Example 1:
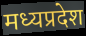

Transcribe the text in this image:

मध्यप्रदेश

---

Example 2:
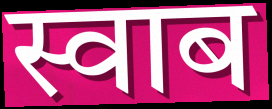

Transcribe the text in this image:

स्वाब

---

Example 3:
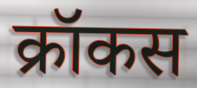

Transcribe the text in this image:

क्रॉकस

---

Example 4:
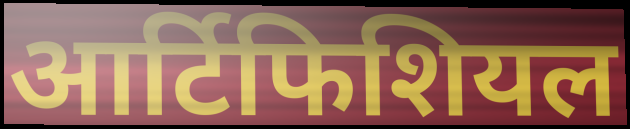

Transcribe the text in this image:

आर्टिफिशियल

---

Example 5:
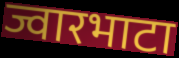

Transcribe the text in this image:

ज्वारभाटा